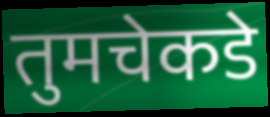
तुमचेकडे